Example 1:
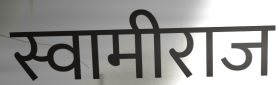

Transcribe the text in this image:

स्वामीराज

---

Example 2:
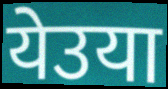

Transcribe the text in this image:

येउया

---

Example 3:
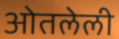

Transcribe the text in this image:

ओतलेली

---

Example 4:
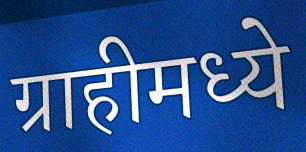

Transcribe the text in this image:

ग्राहीमध्ये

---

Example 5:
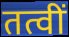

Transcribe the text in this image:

तत्वीं